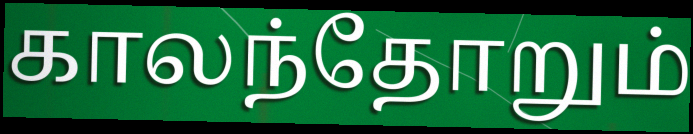
காலந்தோறும்